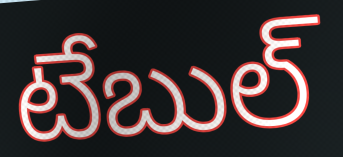
టేబుల్